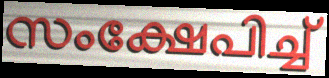
സംക്ഷേപിച്ച്